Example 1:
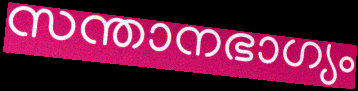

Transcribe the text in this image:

സന്താനഭാഗ്യം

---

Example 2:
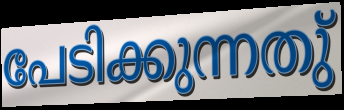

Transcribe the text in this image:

പേടിക്കുന്നതു്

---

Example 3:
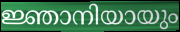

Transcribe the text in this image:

ജ്ഞാനിയായും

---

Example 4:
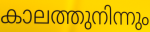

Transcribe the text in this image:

കാലത്തുനിന്നും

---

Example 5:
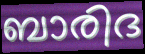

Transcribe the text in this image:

ബാരിദ